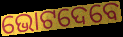
ଭୋଟଦେବେ